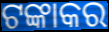
ଟଙ୍କାକର